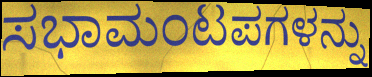
ಸಭಾಮಂಟಪಗಳನ್ನು